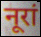
नूरां